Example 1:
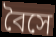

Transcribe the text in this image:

বৈসে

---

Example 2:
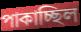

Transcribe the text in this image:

পাকাচ্ছিল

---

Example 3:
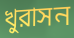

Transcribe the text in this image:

খুরাসন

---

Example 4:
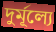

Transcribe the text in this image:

দুর্মূল্যে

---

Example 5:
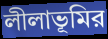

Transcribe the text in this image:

লীলাভূমির